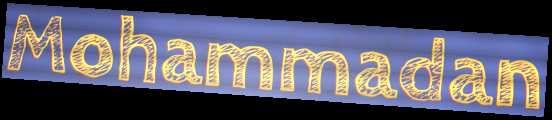
Mohammadan